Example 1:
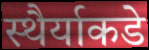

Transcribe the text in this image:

स्थैर्याकडे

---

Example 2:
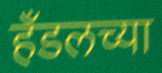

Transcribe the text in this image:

हॅंडलच्या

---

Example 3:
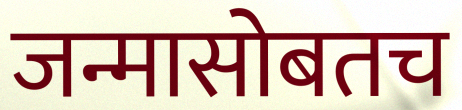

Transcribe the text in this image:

जन्मासोबतच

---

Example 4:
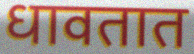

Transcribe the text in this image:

धावतात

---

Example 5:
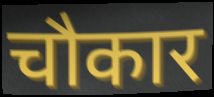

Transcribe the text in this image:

चौकार